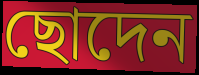
ছোদেন